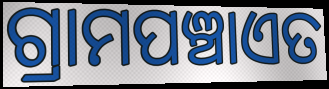
ଗ୍ରାମପଞ୍ଚାଏତ